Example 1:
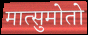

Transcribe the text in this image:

मात्सुमोतो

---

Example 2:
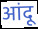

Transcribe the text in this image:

आंदू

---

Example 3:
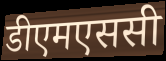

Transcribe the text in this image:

डीएमएससी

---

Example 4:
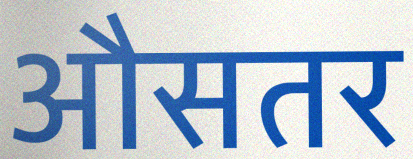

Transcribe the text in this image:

औसतर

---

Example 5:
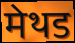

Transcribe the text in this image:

मेथड